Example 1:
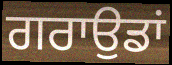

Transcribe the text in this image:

ਗਰਾਉਡਾਂ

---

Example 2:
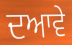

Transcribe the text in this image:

ਦਆਵੇ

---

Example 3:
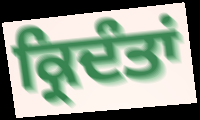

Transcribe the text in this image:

ਕ੍ਰਿਦੰਤਾਂ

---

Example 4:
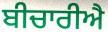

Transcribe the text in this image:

ਬੀਚਾਰੀਐ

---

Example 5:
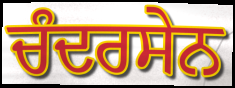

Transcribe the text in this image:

ਚੰਦਰਸੇਨ